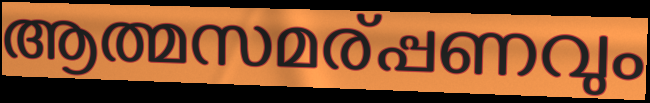
ആത്മസമര്പ്പണവും